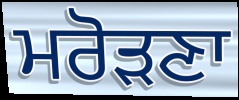
ਮਰੋੜਣਾ